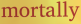
mortally